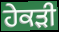
ਹੇਕੜੀ